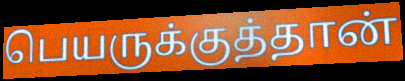
பெயருக்குத்தான்